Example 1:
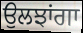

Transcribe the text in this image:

ਉਲਝਾਂਗਾ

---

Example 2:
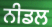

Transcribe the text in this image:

ਨੀਡਲ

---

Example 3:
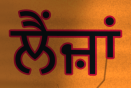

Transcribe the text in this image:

ਲੈਂਜ਼ਾਂ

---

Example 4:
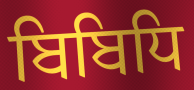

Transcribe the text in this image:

ਬਿਬਿਧਿ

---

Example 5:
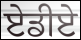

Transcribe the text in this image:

ਏਡੀਏ